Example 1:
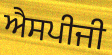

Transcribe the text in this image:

ਐਸਪੀਜੀ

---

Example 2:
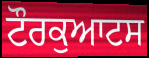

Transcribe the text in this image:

ਟੌਰਕੁਆਟਸ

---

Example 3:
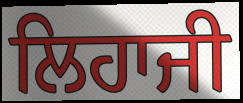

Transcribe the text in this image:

ਲਿਹਾਜੀ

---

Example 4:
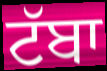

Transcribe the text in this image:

ਟੱਬਾ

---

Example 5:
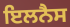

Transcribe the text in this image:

ਇਲਨੈਸ